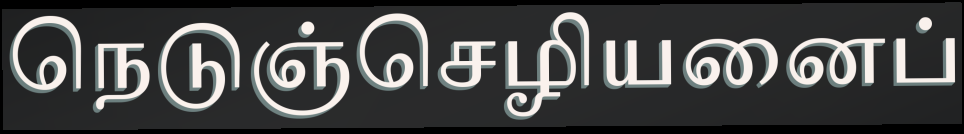
நெடுஞ்செழியனைப்